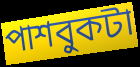
পাশবুকটা